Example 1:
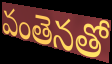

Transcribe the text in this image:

వంతెనతో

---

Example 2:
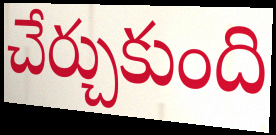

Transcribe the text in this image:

చేర్చుకుంది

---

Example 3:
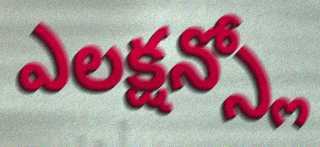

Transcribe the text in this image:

ఎలక్షన్స్లో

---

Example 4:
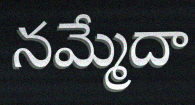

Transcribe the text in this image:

నమ్మేదా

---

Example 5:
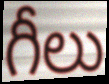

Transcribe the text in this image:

గీలు